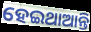
ହେଇଥାଆନ୍ତି